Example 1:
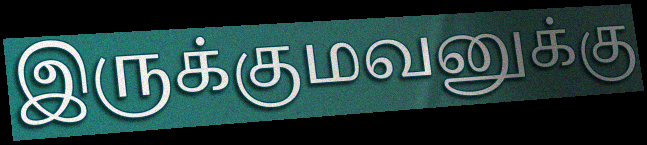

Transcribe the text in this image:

இருக்குமவனுக்கு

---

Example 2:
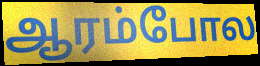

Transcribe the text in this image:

ஆரம்போல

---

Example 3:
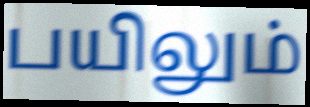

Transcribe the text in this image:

பயிலும்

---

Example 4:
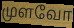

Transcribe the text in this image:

முளவோ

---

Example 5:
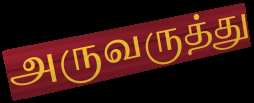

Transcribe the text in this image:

அருவருத்து